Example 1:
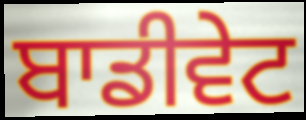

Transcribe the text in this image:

ਬਾਡੀਵੇਟ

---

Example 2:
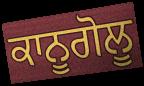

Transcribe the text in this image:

ਕਾਨੂਗੋਲੂ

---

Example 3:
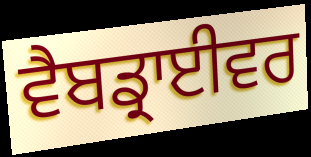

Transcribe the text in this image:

ਵੈਬਡ੍ਰਾਈਵਰ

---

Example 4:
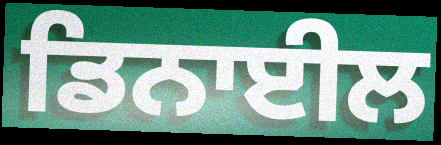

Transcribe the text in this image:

ਡਿਨਾਈਲ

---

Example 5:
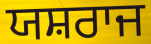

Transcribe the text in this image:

ਯਸ਼ਰਾਜ